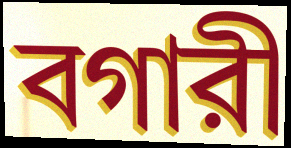
বগারী